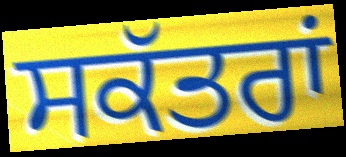
ਸਕੱਤਰਾਂ